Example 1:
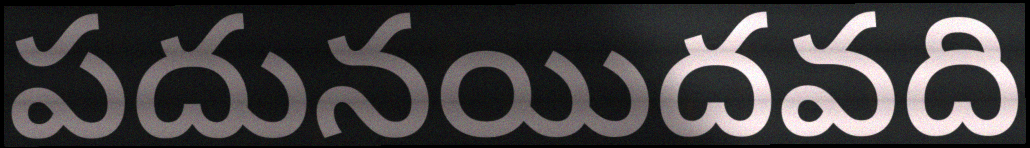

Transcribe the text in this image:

పదునయిదవది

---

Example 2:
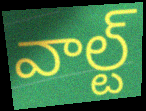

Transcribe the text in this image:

వాల్ట్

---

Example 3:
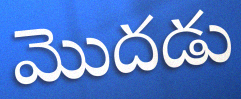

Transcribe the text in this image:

మొదడు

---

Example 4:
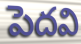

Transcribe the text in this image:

పెదవి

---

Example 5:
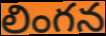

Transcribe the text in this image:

లింగన